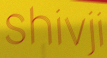
shivji